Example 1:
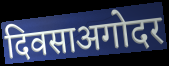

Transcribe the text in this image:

दिवसाअगोदर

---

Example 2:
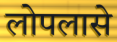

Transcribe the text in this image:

लोपलासे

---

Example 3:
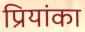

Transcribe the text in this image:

प्रियांका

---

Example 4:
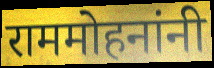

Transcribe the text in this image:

राममोहनांनी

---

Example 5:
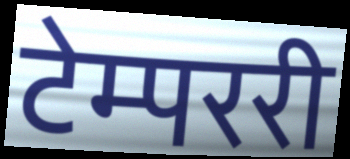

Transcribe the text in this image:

टेम्पररी